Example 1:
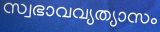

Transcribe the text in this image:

സ്വഭാവവ്യത്യാസം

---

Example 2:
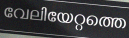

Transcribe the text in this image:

വേലിയേറ്റത്തെ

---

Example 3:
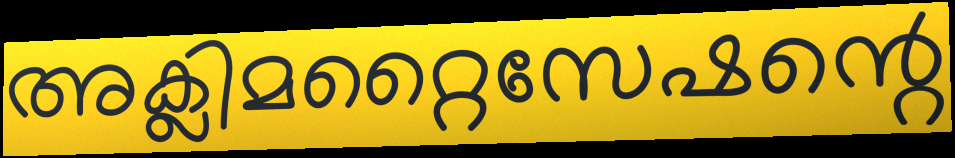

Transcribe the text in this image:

അക്ലിമറ്റൈസേഷന്റെ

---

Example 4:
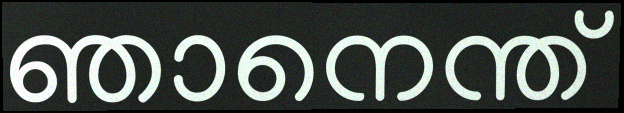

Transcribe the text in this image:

ഞാനെന്ത്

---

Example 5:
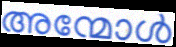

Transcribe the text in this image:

അന്മോൾ